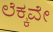
ಲೆಕ್ಕವೇ